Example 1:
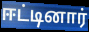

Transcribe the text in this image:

ஈட்டினார்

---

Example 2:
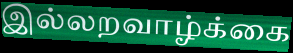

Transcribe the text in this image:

இல்லறவாழ்க்கை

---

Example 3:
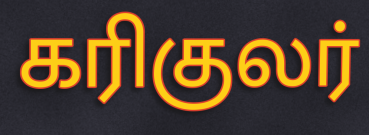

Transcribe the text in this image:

கரிகுலர்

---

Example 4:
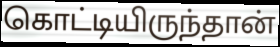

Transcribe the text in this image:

கொட்டியிருந்தான்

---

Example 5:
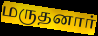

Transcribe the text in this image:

மருதனார்